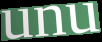
unu